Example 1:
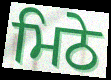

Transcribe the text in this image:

ਮਿਠੇ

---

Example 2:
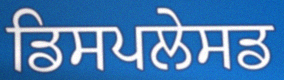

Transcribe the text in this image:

ਡਿਸਪਲੇਸਡ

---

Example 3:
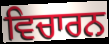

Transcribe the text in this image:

ਵਿਚਾਰਨ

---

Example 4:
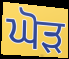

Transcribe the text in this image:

ਘੋੜ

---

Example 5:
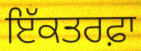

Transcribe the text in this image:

ਇੱਕਤਰਫ਼ਾ